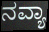
ನವ್ಯಾ